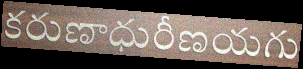
కరుణాధురీణయగు